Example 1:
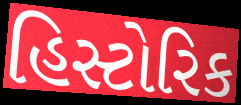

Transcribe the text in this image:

હિસ્ટોરિક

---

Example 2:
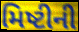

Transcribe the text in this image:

મિષ્ટીની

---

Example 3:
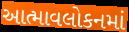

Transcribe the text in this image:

આત્માવલોકનમાં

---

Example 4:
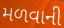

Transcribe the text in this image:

મળવાની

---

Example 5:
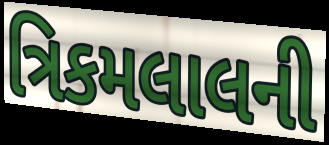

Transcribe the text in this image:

ત્રિકમલાલની